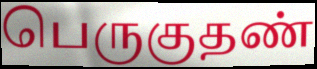
பெருகுதண்